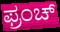
ಫ್ರಂಚ್